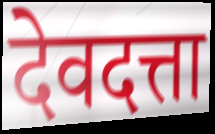
देवदत्ता